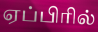
ஏப்பிரில்